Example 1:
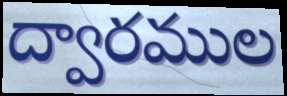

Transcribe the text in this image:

ద్వారముల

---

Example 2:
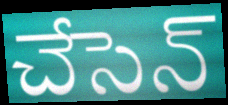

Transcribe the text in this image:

చేసెన్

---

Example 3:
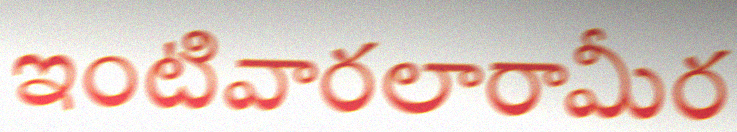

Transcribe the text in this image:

ఇంటివారలారామీర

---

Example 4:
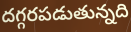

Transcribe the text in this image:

దగ్గరపడుతున్నది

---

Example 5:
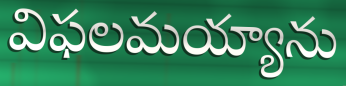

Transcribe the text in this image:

విఫలమయ్యాను